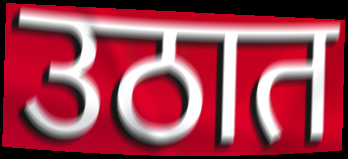
उठात